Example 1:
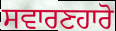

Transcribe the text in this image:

ਸਵਾਰਣਹਾਰੋ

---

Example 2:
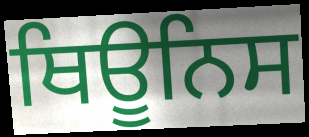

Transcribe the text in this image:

ਥਿਊਨਿਸ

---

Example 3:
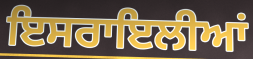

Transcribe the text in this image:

ਇਸਰਾਇਲੀਆਂ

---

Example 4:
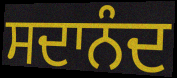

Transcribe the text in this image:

ਸਦਾਨੰਦ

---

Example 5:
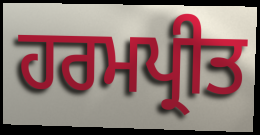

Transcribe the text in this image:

ਹਰਮਪ੍ਰੀਤ